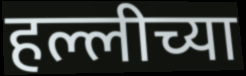
हल्लीच्या